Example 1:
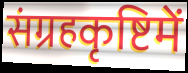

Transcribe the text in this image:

संग्रहकृष्टिमें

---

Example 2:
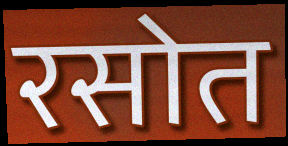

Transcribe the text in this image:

रसोत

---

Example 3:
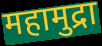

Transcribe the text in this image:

महामुद्रा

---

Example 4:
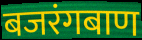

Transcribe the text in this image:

बजरंगबाण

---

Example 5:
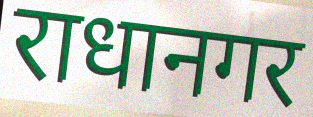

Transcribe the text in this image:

राधानगर